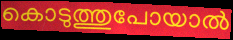
കൊടുത്തുപോയാൽ